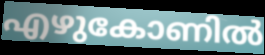
എഴുകോണിൽ